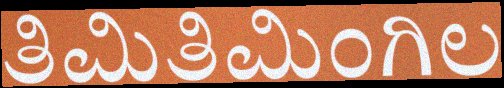
ತಿಮಿತಿಮಿಂಗಿಲ